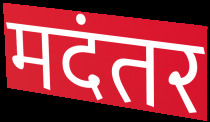
मदंतर